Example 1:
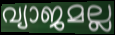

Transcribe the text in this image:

വ്യാജമല്ല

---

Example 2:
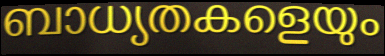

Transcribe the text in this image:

ബാധ്യതകളെയും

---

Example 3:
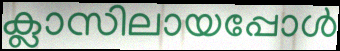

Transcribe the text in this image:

ക്ലാസിലായപ്പോൾ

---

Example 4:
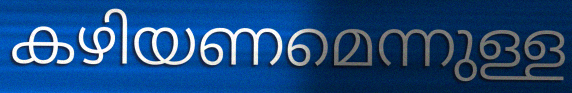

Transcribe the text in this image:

കഴിയണമെന്നുള്ള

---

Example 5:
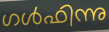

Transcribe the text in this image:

ഗൾഫിന്നു